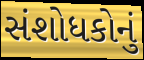
સંશોધકોનું